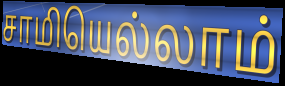
சாமியெல்லாம்